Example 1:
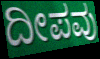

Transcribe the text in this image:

ದೀಪವು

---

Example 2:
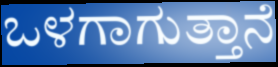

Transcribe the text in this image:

ಒಳಗಾಗುತ್ತಾನೆ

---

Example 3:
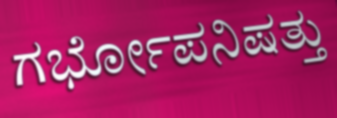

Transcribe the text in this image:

ಗರ್ಭೋಪನಿಷತ್ತು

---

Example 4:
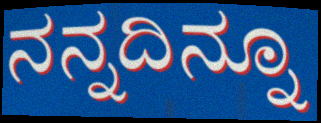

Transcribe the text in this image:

ನನ್ನದಿನ್ನೂ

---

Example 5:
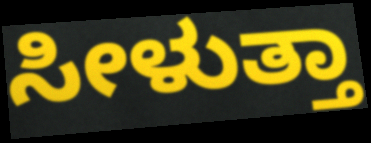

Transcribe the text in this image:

ಸೀಳುತ್ತಾ